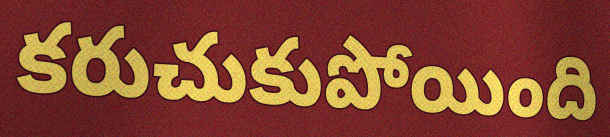
కరుచుకుపోయింది